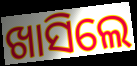
ଖାସିଲେ